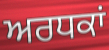
ਅਰਧਕਾਂ